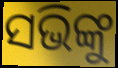
ସଭିଙ୍କୁ